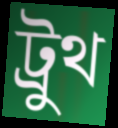
ট্রুথ